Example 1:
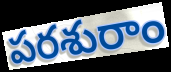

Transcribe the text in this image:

పరశురాం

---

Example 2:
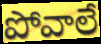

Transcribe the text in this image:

పోవాలే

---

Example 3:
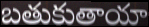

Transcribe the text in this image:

బతుకుతాయా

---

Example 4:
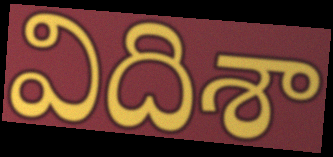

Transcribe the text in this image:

విదిశా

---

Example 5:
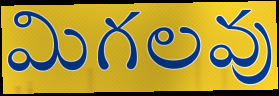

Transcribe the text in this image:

మిగలవు